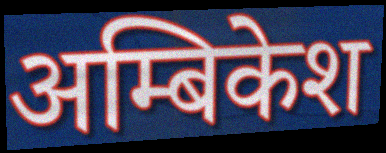
अम्बिकेश